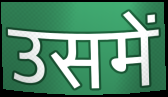
उसमें